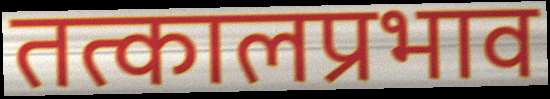
तत्कालप्रभाव